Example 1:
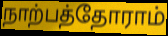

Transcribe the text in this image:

நாற்பத்தோராம்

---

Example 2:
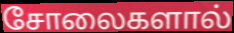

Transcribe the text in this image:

சோலைகளால்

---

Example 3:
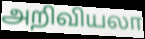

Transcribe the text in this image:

அறிவியலா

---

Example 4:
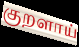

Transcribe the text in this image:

குறளாய்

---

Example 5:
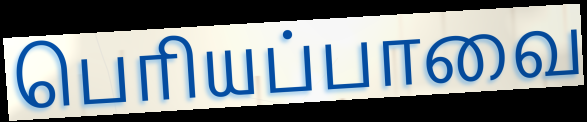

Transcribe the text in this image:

பெரியப்பாவை